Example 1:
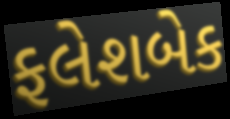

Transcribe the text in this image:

ફલેશબેક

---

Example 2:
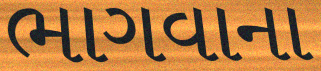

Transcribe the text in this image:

ભાગવાના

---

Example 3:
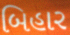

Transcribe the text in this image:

બિહાર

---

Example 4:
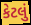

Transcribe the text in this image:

કેટલું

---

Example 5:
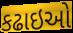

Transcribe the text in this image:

કઢાઇઓ